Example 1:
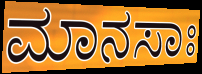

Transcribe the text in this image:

ಮಾನಸಾಃ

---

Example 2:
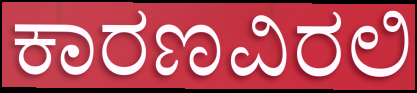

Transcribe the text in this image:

ಕಾರಣವಿರಲಿ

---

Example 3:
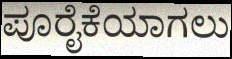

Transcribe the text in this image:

ಪೂರೈಕೆಯಾಗಲು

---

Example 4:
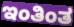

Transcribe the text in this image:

ಇಂತಿಂತ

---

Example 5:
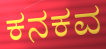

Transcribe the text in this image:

ಕನಕವ